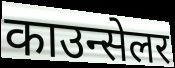
काउन्सेलर